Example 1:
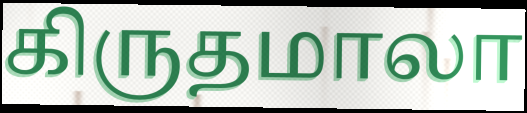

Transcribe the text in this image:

கிருதமாலா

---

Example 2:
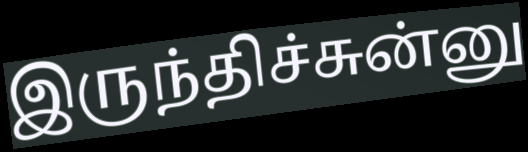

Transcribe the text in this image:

இருந்திச்சுன்னு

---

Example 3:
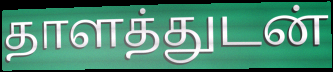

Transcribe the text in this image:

தாளத்துடன்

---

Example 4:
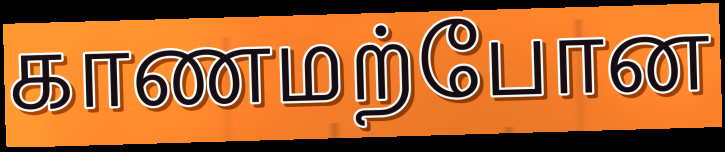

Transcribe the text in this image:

காணமற்போன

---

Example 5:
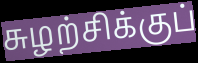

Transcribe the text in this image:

சுழற்சிக்குப்